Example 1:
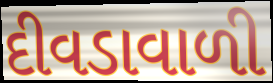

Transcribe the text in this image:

દીવડાવાળી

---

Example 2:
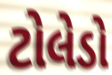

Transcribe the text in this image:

ટોલેડો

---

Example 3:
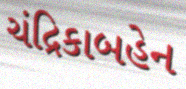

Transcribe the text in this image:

ચંદ્રિકાબહેન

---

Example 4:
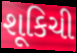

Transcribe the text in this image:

શૂકિચી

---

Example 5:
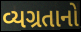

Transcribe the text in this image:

વ્યગ્રતાનો